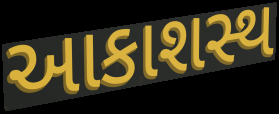
આકાશસ્થ